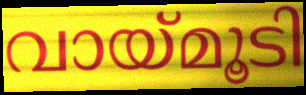
വായ്മൂടി